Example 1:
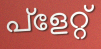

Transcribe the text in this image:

പ്ളേറ്റ്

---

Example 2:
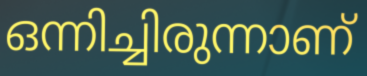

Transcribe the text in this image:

ഒന്നിച്ചിരുന്നാണ്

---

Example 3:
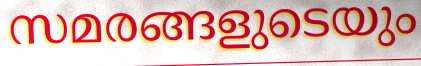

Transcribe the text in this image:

സമരങ്ങളുടെയും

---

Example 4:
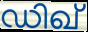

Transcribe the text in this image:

ഡിഖ്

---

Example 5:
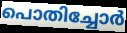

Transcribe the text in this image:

പൊതിച്ചോർ